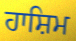
ਹਾਸ਼ਿਮ